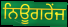
ਨਿਊਗਰੇਂਜ